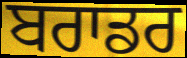
ਬਰਾਡਰ